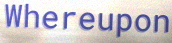
Whereupon